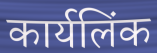
कार्यलिंक